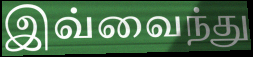
இவ்வைந்து